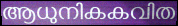
ആധുനികകവിത